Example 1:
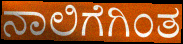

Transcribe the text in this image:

ನಾಲಿಗೆಗಿಂತ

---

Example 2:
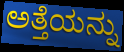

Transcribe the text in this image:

ಅತ್ತೆಯನ್ನು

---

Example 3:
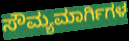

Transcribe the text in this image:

ಸೌಮ್ಯಮಾರ್ಗಿಗಳ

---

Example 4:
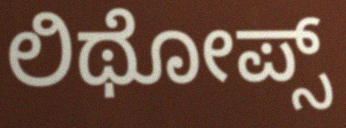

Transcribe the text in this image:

ಲಿಥೋಪ್ಸ್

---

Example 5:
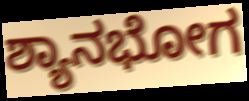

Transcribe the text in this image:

ಶ್ಯಾನಭೋಗ